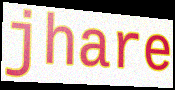
jhare